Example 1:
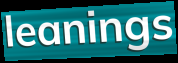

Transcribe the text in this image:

leanings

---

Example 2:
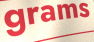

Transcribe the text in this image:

grams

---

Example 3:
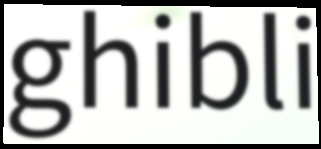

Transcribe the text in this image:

ghibli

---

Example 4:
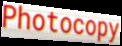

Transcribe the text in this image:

Photocopy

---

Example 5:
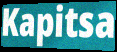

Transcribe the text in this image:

Kapitsa